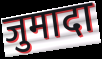
जुमादा